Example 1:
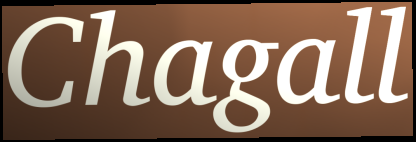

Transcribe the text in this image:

Chagall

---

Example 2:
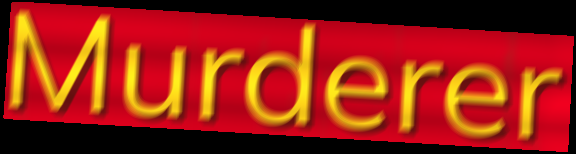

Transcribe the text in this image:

Murderer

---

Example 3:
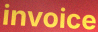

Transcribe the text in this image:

invoice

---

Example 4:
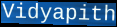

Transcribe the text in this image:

Vidyapith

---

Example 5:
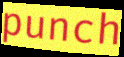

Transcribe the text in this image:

punch